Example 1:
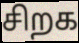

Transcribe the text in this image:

சிறக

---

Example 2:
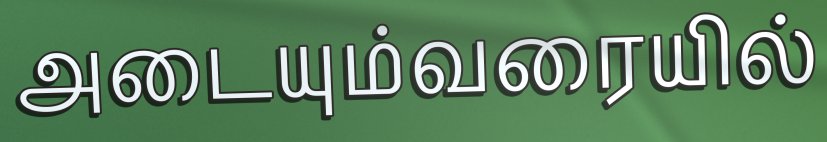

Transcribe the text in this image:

அடையும்வரையில்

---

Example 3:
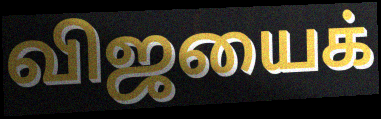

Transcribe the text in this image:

விஜயைக்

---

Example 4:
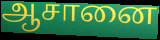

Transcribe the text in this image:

ஆசானை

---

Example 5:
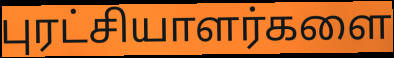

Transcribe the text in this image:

புரட்சியாளர்களை